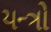
યન્ત્રો